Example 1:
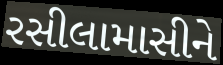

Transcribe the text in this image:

રસીલામાસીને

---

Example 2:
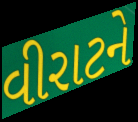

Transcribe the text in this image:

વીરાટને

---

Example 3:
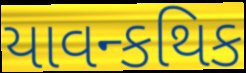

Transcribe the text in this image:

યાવન્કથિક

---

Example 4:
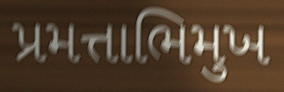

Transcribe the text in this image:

પ્રમત્તાભિમુખ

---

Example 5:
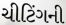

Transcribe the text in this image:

ચીટિંગની